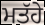
ਮਤੱਹੇ